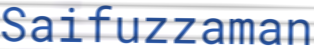
Saifuzzaman